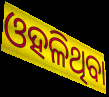
ଓହଳିଥିବା